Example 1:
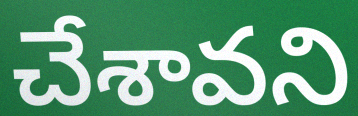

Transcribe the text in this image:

చేశావని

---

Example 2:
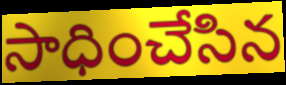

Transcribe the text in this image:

సాధించేసిన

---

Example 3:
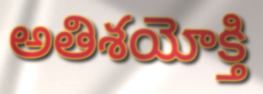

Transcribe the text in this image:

అతిశయోక్తి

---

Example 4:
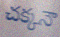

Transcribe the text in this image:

చక్కనౌ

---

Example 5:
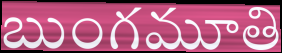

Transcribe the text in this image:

బుంగమూతి